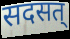
सदसत्